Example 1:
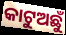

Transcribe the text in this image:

କାଟୁଅଛୁଁ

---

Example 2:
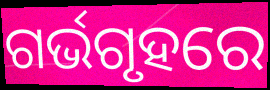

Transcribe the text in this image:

ଗର୍ଭଗୃହରେ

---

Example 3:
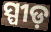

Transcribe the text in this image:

ସ୍ପୀଡ଼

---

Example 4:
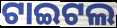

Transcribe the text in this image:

ଟାଇଟଲ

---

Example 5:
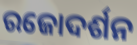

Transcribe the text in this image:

ରଜୋଦର୍ଶନ